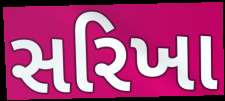
સરિખા